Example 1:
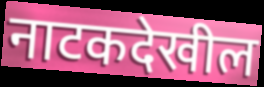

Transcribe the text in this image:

नाटकदेखील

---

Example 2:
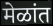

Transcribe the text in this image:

मेळांत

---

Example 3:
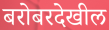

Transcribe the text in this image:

बरोबरदेखील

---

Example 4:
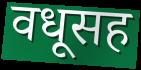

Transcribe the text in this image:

वधूसह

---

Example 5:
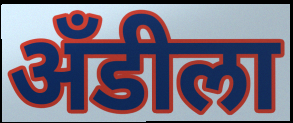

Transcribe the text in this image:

अँडीला